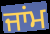
ਜਾਂਮ